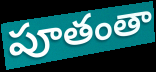
పూతంతా